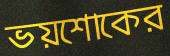
ভয়শোকের